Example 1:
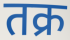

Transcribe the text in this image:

तक्र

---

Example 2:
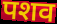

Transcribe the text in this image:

पशव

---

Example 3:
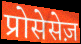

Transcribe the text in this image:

प्रोसेसेज़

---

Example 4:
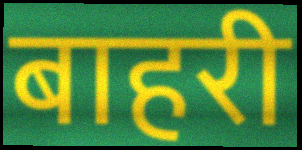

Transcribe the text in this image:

बाहरी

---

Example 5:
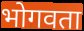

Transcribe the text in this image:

भोगवता